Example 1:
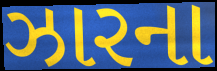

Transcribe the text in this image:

ઝારના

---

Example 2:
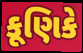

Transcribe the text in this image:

કૂણિકે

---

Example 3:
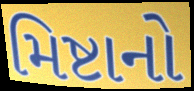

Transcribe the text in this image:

મિષ્ટાનો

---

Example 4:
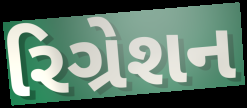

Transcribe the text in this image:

રિગ્રેશન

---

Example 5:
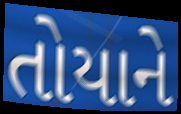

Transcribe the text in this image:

તોયાને